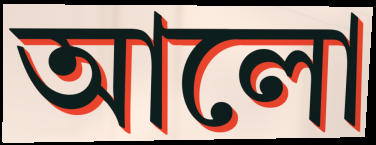
আলো